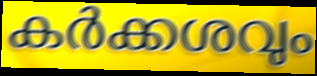
കർക്കശവും